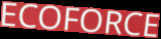
ECOFORCE